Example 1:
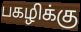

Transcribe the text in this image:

பகழிக்கு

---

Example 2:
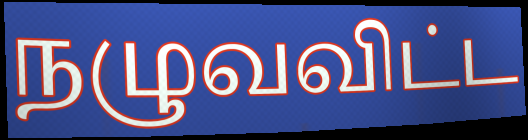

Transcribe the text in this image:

நழுவவிட்ட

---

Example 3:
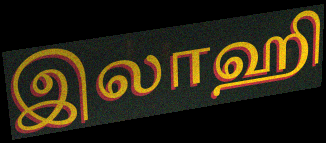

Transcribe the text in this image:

இலாஹி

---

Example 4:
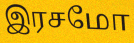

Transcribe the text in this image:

இரசமோ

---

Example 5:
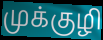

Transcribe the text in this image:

முக்குழி